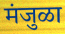
मंजुळा